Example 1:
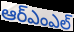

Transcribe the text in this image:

ఆర్ఎంఎల్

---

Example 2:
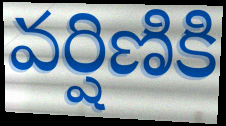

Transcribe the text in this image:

వర్షిణికి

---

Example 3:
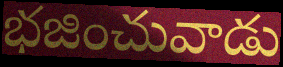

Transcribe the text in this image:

భజించువాడు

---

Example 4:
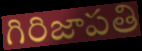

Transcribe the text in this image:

గిరిజాపతి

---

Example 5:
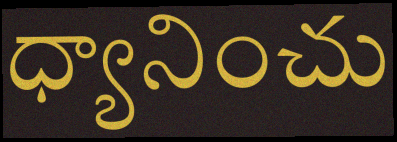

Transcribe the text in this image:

ధ్యానించు